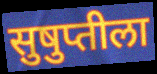
सुषुप्तीला